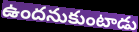
ఉందనుకుంటాడు